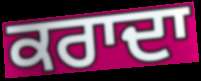
ਕਰਾਦਾ